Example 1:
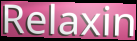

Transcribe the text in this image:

Relaxin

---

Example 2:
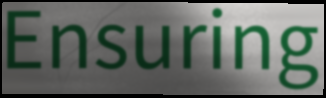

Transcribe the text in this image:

Ensuring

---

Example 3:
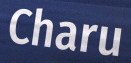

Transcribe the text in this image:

Charu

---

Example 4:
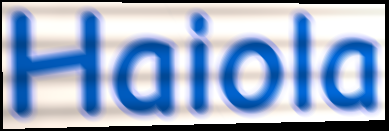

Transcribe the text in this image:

Haiola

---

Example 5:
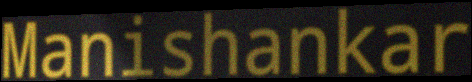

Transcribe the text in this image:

Manishankar